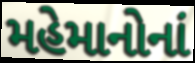
મહેમાનોનાં